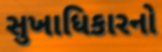
સુખાધિકારનો